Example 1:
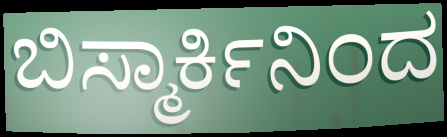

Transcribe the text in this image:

ಬಿಸ್ಮಾರ್ಕಿನಿಂದ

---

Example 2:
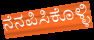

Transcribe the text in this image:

ನೆನಪಿಸಿಕೊಳ್ಳಿ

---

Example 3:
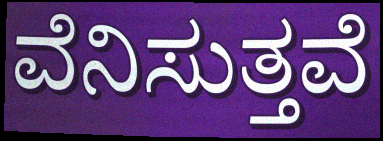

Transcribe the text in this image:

ವೆನಿಸುತ್ತವೆ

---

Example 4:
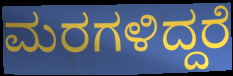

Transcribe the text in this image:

ಮರಗಳಿದ್ದರೆ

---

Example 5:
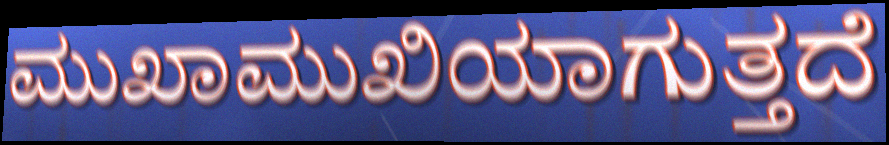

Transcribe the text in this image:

ಮುಖಾಮುಖಿಯಾಗುತ್ತದೆ